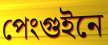
পেংগুইনে